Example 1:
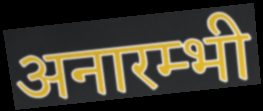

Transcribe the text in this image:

अनारम्भी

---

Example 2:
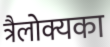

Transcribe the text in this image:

त्रैलोक्यका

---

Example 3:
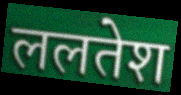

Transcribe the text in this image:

ललतेश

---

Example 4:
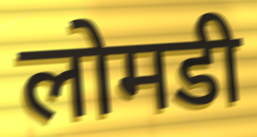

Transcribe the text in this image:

लोमडी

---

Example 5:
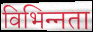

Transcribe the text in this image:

विभिन्‍नता